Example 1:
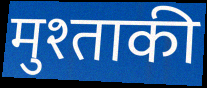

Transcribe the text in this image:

मुश्ताकी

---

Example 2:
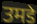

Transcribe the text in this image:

उमडे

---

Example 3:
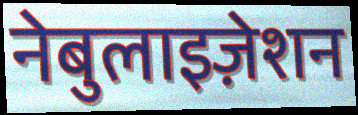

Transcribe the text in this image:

नेबुलाइज़ेशन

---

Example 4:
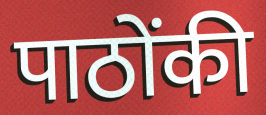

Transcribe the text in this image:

पाठोंकी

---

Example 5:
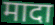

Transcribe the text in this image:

मादा